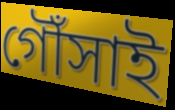
গৌঁসাই